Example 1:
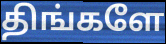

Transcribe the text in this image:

திங்களே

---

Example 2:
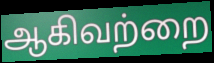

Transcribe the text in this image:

ஆகிவற்றை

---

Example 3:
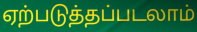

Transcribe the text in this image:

ஏற்படுத்தப்படலாம்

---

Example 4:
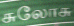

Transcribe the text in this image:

சுலோசு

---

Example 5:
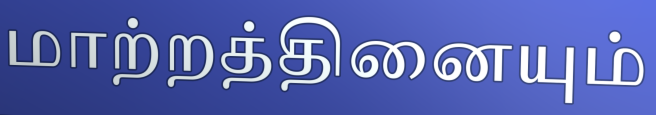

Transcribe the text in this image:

மாற்றத்தினையும்